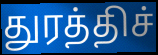
துரத்திச்